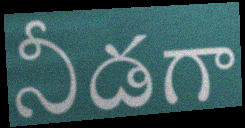
నీడగా